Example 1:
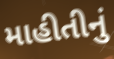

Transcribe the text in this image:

માહીતીનું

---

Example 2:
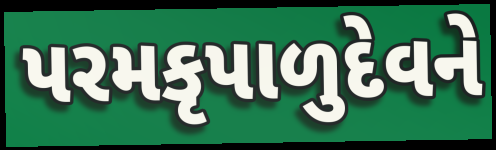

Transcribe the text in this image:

પરમકૃપાળુદેવને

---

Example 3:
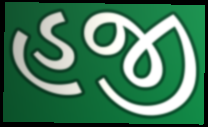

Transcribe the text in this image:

હજી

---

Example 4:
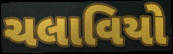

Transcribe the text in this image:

ચલાવિયો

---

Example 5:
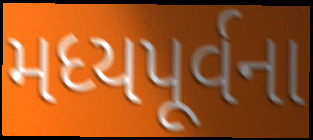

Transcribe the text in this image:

મધ્યપૂર્વના